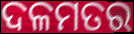
ଦଳମତର